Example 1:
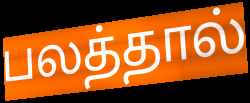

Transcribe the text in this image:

பலத்தால்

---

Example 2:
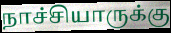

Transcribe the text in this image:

நாச்சியாருக்கு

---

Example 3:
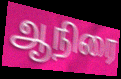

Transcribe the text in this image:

ஆநிரை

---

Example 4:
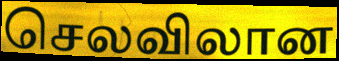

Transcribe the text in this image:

செலவிலான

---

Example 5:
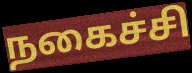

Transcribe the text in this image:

நகைச்சி